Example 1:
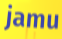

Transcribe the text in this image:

jamu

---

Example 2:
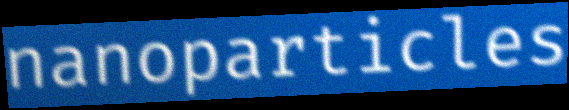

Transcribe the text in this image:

nanoparticles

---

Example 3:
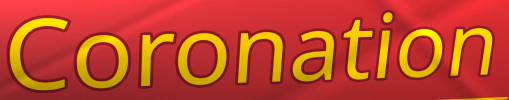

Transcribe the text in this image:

Coronation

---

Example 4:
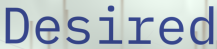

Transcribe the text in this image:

Desired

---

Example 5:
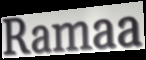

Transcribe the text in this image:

Ramaa